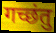
गच्छंतु